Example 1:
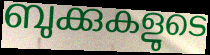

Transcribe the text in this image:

ബുക്കുകളുടെ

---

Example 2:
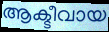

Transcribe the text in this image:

ആക്ടീവായ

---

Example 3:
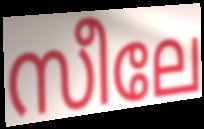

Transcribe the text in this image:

സീലേ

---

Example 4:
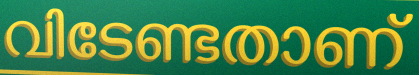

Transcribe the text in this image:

വിടേണ്ടതാണ്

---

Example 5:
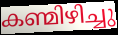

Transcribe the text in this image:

കണ്മിഴിച്ചു